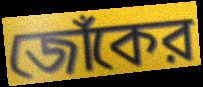
জোঁকের